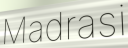
Madrasi